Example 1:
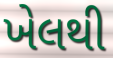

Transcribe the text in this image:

ખેલથી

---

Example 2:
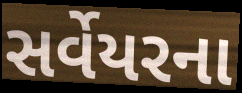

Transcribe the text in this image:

સર્વેયરના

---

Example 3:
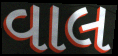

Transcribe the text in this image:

વાલ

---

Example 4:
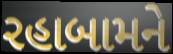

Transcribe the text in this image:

રહાબામને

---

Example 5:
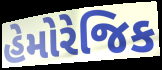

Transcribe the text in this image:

હેમોરેજિક